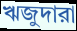
ঋজুদারা